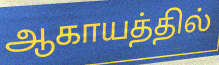
ஆகாயத்தில்